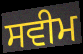
ਸਵੀਮ